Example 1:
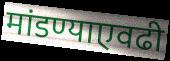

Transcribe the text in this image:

मांडण्याएवढी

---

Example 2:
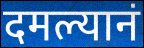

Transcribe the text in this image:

दमल्यानं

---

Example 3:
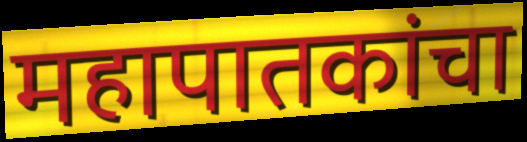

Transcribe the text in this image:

महापातकांचा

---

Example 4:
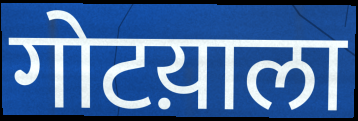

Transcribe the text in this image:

गोटय़ाला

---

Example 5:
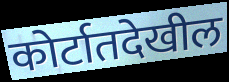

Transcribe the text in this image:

कोर्टातदेखील